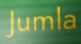
Jumla